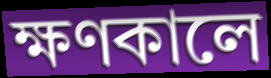
ক্ষণকালে